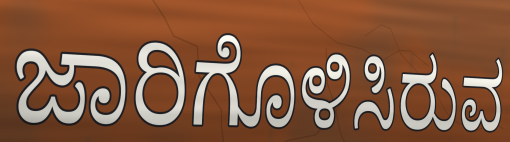
ಜಾರಿಗೊಳಿಸಿರುವ